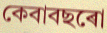
কেবাবছৰো